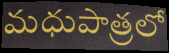
మధుపాత్రలో